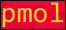
pmol